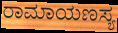
ರಾಮಾಯಣಸ್ಯ